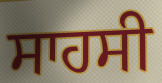
ਸਾਹਸੀ